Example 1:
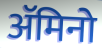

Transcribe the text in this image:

ॲमिनो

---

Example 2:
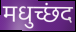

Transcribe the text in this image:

मधुच्छंद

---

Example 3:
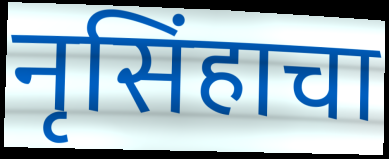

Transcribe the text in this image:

नृसिंहाचा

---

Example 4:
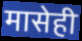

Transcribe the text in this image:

मासेही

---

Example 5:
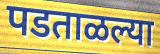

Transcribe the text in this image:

पडताळल्या